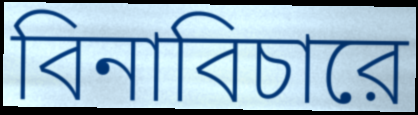
বিনাবিচারে